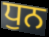
ਧੁਨ